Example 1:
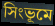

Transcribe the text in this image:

সিংভূমে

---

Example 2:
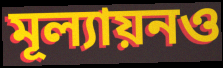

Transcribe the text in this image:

মূল্যায়নও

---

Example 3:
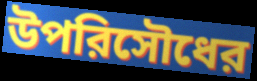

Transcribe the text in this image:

উপরিসৌধের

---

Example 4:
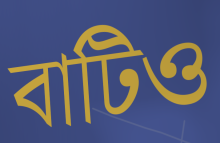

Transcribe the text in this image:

বাটিও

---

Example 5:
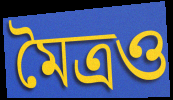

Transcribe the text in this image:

মৈত্রও